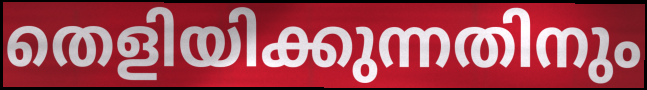
തെളിയിക്കുന്നതിനും